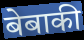
बेबाकी